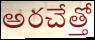
అరచేత్తో